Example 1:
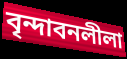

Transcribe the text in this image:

বৃন্দাবনলীলা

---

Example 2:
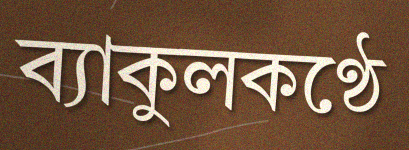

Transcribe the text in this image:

ব্যাকুলকণ্ঠে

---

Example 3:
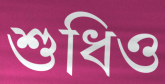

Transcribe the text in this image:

শুধিও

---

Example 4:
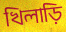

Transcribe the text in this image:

খিলাড়ি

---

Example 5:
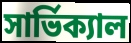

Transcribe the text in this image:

সার্ভিক্যাল